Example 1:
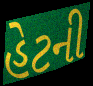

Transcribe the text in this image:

હેટની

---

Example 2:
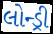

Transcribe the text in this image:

લોન્ડ્રી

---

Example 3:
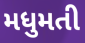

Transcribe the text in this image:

મધુમતી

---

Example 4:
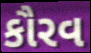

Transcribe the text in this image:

કૌરવ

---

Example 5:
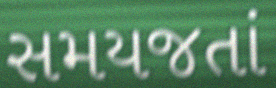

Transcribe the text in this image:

સમયજતાં